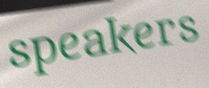
speakers